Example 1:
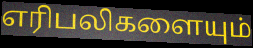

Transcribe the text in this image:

எரிபலிகளையும்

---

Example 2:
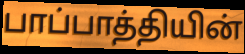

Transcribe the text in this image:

பாப்பாத்தியின்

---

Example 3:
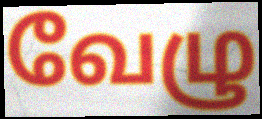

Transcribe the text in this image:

வேழு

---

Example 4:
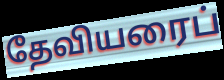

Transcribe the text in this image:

தேவியரைப்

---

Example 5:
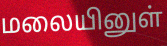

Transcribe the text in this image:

மலையினுள்